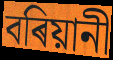
বৰিয়ানী